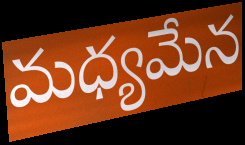
మధ్యమేన